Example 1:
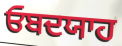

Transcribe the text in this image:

ਓਬਦਯਾਹ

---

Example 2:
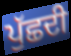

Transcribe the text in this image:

ਪੁੱਛਦੀ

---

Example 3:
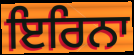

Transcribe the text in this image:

ਇਰਿਨਾ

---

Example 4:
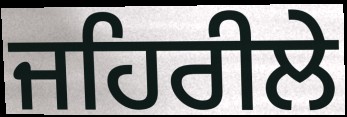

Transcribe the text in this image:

ਜਹਿਰੀਲੇ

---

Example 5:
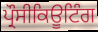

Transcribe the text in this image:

ਪ੍ਰੌਸੀਕਿਊਟਿੰਗ